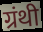
ग्रंथी